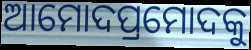
ଆମୋଦପ୍ରମୋଦକୁ